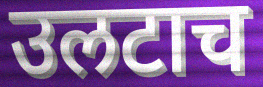
उलटाच